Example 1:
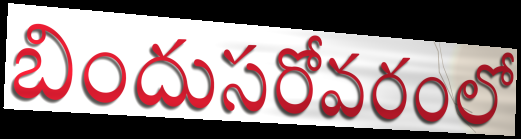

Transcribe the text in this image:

బిందుసరోవరంలో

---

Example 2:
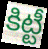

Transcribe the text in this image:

కిట్టీ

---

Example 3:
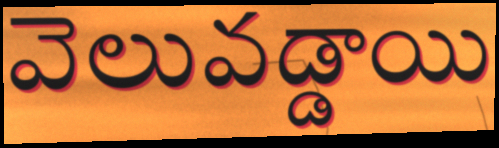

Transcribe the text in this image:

వెలువడ్డాయి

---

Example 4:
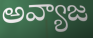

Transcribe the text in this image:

అవ్యాజ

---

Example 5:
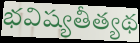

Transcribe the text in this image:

భవిష్యతీత్యథ